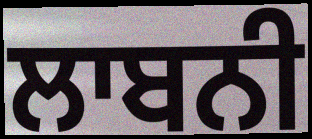
ਲਾਬਨੀ